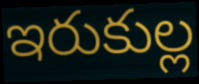
ఇరుకుల్ల